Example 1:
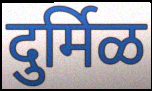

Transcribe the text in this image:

दुर्मिळ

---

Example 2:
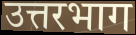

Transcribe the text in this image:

उत्तरभाग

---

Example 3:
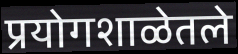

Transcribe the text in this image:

प्रयोगशाळेतले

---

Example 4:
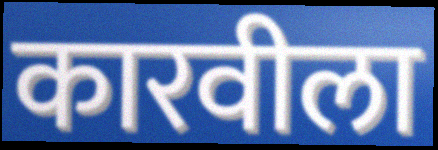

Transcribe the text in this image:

कारवीला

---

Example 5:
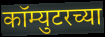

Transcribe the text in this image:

कॉम्युटरच्या